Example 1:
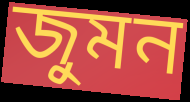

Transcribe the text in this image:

জুমন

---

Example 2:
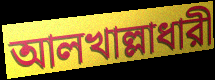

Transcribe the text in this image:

আলখাল্লাধারী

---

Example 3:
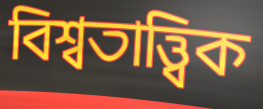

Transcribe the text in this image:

বিশ্বতাত্ত্বিক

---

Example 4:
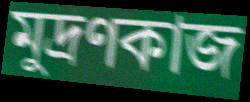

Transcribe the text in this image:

মুদ্রণকাজ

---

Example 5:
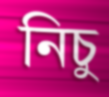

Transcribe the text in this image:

নিচু